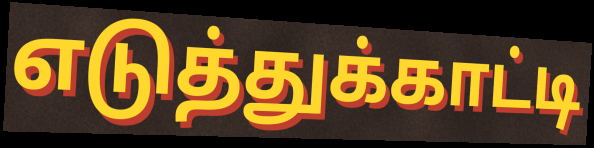
எடுத்துக்காட்டி